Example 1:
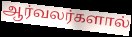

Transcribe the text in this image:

ஆர்வலர்களால்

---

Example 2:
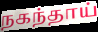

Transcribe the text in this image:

நகந்தாய்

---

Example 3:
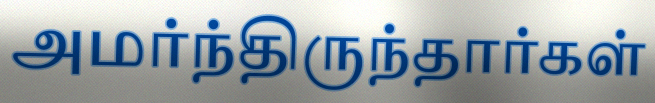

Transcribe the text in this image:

அமர்ந்திருந்தார்கள்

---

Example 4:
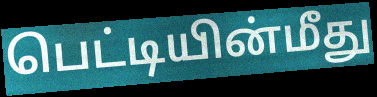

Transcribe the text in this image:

பெட்டியின்மீது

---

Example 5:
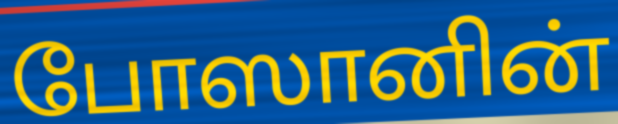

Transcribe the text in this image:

போஸானின்